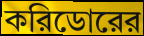
করিডোরের